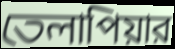
তেলাপিয়ার